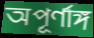
অপূর্ণাঙ্গ